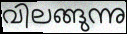
വിലങ്ങുന്നു